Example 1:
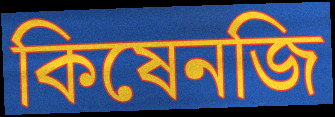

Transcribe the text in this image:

কিষেনজি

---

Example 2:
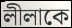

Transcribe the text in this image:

লীলাকে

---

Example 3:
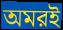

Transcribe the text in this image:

অমরই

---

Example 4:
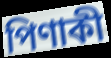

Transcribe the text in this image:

পিণাকী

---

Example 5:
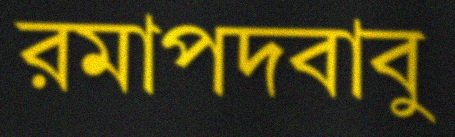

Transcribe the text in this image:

রমাপদবাবু